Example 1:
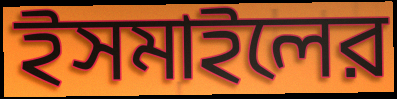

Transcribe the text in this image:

ইসমাইলের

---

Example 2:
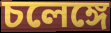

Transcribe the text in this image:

চলেঙ্গে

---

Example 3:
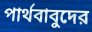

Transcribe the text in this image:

পার্থবাবুদের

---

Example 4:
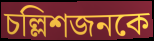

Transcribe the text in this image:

চল্লিশজনকে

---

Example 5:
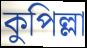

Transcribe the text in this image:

কুপিল্লা